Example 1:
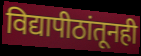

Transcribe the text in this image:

विद्यापीठांतूनही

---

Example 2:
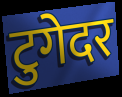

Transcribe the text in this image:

टुगेदर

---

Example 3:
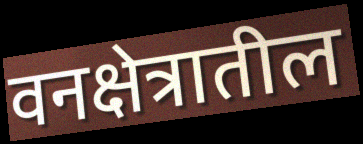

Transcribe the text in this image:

वनक्षेत्रातील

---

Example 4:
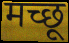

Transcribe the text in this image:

मच्छू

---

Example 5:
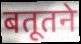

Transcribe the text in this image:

बतूतने